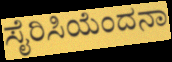
ಸೈರಿಸಿಯೆಂದನಾ